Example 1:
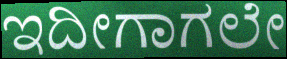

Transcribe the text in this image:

ಇದೀಗಾಗಲೇ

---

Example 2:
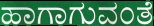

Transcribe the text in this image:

ಹಾಗಾಗುವಂತೆ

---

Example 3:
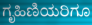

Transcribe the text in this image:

ಗೃಹಿಣಿಯರಿಗೂ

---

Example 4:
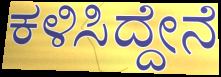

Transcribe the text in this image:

ಕಳಿಸಿದ್ದೇನೆ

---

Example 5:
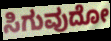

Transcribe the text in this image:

ಸಿಗುವುದೋ